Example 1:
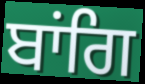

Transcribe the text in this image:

ਬਾਂਗਿ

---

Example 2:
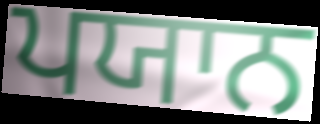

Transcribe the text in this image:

ਪਯਾਨ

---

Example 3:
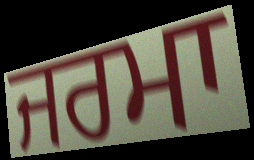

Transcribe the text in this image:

ਜਰਮਾ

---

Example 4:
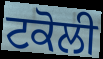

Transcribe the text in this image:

ਟਕੋਲੀ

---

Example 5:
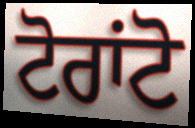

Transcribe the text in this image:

ਟੋਰਾਂਟੋ